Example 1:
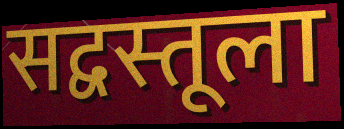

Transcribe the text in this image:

सद्वस्तूला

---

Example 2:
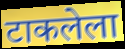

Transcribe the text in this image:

टाकलेला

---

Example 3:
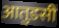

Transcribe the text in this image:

आतुडसी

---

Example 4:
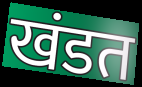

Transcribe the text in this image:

खंडत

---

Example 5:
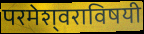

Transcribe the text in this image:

परमेश्वराविषयी